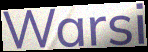
Warsi